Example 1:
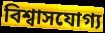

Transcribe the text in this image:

বিশ্বাসযোগ্য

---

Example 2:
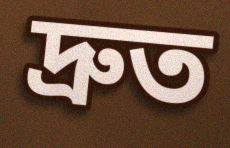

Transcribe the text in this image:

দ্ৰুত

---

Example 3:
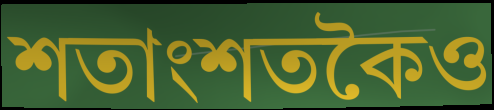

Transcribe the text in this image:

শতাংশতকৈও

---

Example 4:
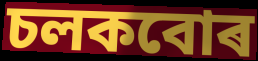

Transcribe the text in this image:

চলকবোৰ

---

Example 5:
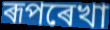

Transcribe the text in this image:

ৰূপৰেখা